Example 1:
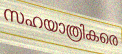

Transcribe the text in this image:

സഹയാത്രികരെ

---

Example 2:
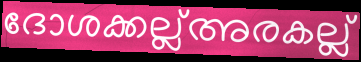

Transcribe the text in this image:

ദോശക്കല്ല്അരകല്ല്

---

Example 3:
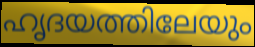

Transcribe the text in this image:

ഹൃദയത്തിലേയും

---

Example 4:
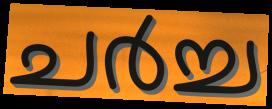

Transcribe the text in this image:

ചർച്ച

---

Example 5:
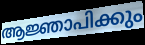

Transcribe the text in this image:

ആജ്ഞാപിക്കും